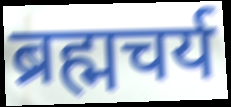
ब्रह्मचर्य